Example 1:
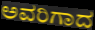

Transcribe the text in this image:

ಅವರಿಗಾದ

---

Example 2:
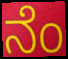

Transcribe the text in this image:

ನೆಂ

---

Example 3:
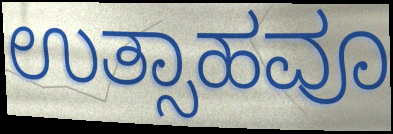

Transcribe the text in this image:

ಉತ್ಸಾಹವೂ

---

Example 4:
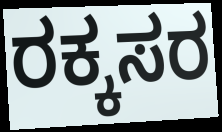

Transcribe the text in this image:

ರಕ್ಕಸರ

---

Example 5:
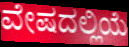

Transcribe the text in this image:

ವೇಷದಲ್ಲಿಯೆ